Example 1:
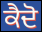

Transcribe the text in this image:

ਕੈਦੋ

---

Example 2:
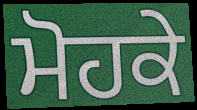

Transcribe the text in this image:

ਮੋਹਕੇ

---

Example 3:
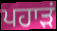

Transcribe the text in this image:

ਪਹਾੜਂ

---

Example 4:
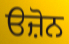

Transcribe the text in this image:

ੳਜ਼ੋਨ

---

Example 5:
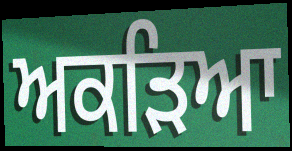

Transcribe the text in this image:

ਅਕੜਿਆ